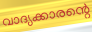
വാദ്യക്കാരന്റെ